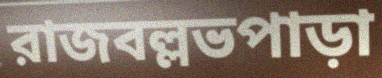
রাজবল্লভপাড়া